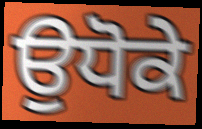
ਉਧੋਕੇ